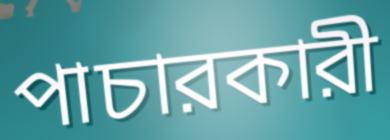
পাচারকারী